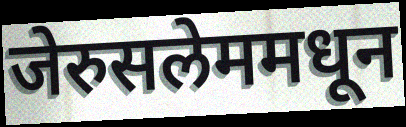
जेरुसलेममधून